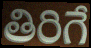
తిరిగే